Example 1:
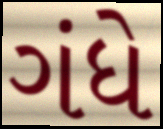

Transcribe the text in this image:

ગંધે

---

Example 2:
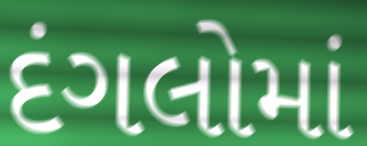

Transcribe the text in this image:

દંગલોમાં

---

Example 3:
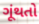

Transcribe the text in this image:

ગૂંથતો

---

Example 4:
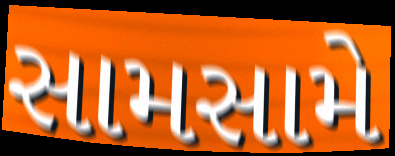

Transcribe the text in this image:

સામસામે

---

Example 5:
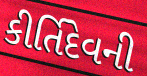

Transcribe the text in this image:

કીર્તિદેવની